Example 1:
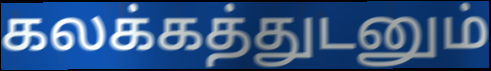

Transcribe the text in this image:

கலக்கத்துடனும்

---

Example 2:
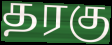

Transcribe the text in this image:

தரகு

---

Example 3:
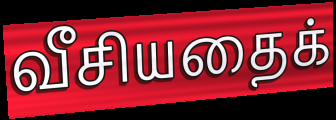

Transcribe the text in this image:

வீசியதைக்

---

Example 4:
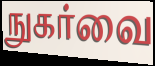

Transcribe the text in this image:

நுகர்வை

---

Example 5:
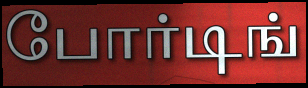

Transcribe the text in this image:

போர்டிங்